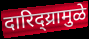
दारिद्य्रामुळे